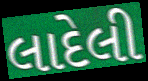
લાદેલી